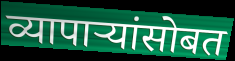
व्यापाऱ्यांसोबत